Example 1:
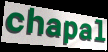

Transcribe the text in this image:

chapal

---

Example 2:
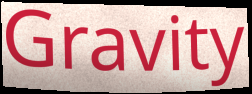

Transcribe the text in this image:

Gravity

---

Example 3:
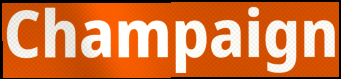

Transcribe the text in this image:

Champaign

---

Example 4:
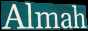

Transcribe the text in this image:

Almah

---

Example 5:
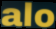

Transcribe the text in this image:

alo